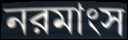
নরমাংস